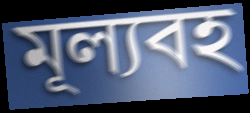
মূল্যবহ